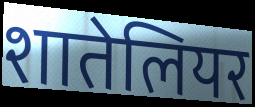
शातेलियर